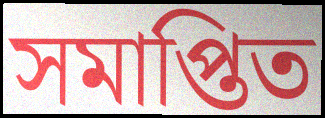
সমাপ্তিত